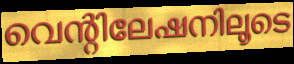
വെന്റിലേഷനിലൂടെ